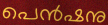
പെൻഷനു